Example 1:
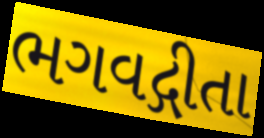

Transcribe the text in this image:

ભગવદ્ગીતા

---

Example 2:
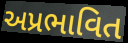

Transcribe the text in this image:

અપ્રભાવિત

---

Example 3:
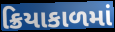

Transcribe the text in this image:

ક્રિયાકાળમાં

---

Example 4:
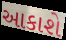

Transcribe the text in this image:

આકાશે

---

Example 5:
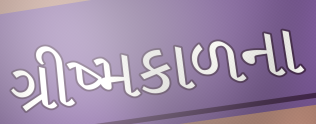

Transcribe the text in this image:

ગ્રીષ્મકાળના